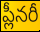
ప్లీనరీ